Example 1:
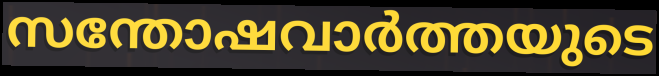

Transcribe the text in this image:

സന്തോഷവാർത്തയുടെ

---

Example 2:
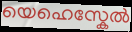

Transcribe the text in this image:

യെഹെസ്കേൽ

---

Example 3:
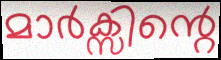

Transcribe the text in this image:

മാർക്സിന്റെ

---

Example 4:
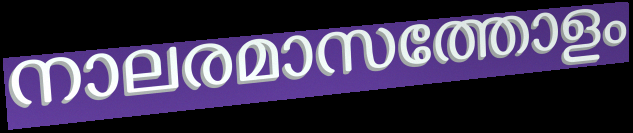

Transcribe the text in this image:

നാലരമാസത്തോളം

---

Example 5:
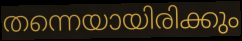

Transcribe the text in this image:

തന്നെയായിരിക്കും